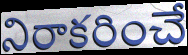
నిరాకరించే